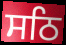
ਸਠਿ